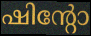
ഷിന്റോ